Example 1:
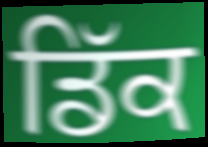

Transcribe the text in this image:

ਡਿੱਕ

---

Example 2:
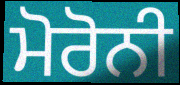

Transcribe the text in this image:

ਮੋਰੋਨੀ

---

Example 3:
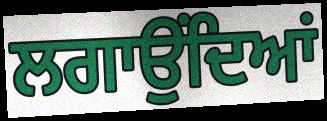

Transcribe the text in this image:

ਲਗਾਉੰਦਿਆਂ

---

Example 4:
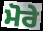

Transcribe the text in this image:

ਮੋਰੇ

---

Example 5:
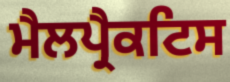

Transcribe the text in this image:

ਮੈਲਪ੍ਰੈਕਟਿਸ